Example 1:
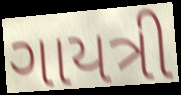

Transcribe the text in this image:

ગાયત્રી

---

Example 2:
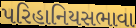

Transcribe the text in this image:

પરિહાનિયસભાવા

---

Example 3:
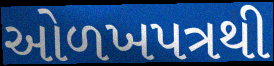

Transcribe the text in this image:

ઓળખપત્રથી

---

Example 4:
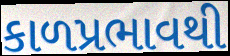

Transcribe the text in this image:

કાળપ્રભાવથી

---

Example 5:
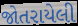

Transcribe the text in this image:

જોતરાયેલી